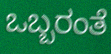
ಒಬ್ಬರಂತೆ